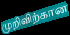
முறிவிற்கான